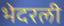
भेदरली